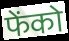
फेंको